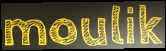
moulik